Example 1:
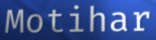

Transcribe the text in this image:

Motihar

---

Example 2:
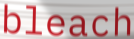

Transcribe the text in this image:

bleach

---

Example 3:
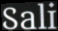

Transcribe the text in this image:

Sali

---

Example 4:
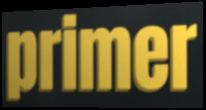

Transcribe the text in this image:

primer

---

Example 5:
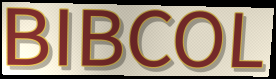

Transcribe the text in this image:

BIBCOL